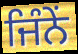
ਜਿੰਨੇਂ